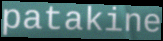
patakine